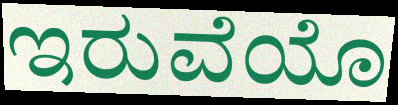
ಇರುವೆಯೊ